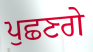
ਪੁਛਣਗੇ